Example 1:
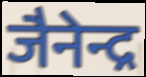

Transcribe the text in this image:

जैनेन्‍द्र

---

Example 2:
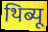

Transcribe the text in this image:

थिब्यू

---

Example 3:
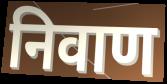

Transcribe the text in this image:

निवाण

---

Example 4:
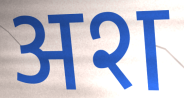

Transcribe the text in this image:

अश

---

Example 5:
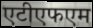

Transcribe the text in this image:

एटीएफएम